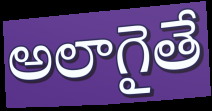
అలాగైతే